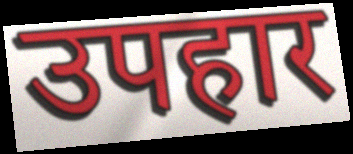
उपहार